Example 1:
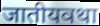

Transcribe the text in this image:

जातीयवथा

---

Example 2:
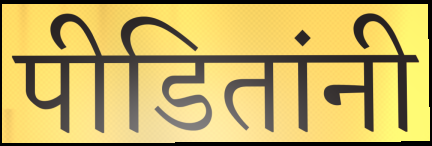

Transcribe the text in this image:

पीडितांनी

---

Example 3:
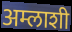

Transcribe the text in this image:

अम्लाशी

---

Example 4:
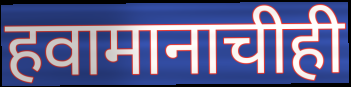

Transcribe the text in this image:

हवामानाचीही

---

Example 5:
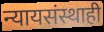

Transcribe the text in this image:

न्यायसंस्थाही